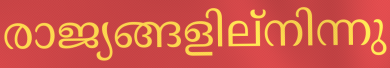
രാജ്യങ്ങളില്നിന്നു